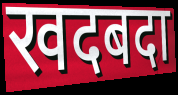
खदबदा